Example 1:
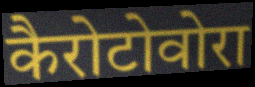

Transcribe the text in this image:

कैरोटोवोरा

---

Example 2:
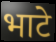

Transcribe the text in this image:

भाटे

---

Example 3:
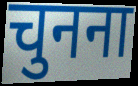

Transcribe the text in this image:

चुनना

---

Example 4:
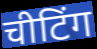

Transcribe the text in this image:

चीटिंग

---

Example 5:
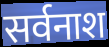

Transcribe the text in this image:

सर्वनाश